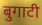
बुगाटी